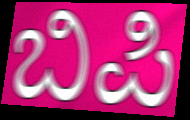
ಬಿಪಿ